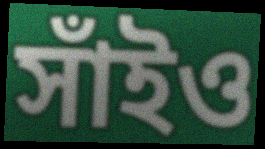
সাঁইও